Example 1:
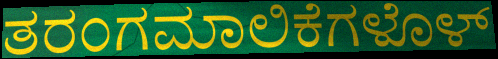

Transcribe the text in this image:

ತರಂಗಮಾಲಿಕೆಗಳೊಳ್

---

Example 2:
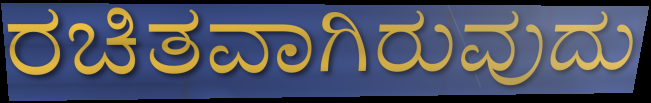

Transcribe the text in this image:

ರಚಿತವಾಗಿರುವುದು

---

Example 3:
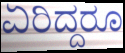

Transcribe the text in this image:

ಏರಿದ್ದರೂ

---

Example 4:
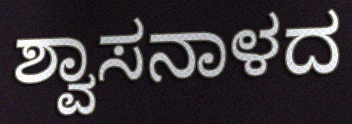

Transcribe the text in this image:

ಶ್ವಾಸನಾಳದ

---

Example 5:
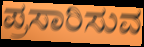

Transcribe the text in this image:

ಪ್ರಸಾರಿಸುವ